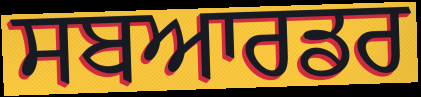
ਸਬਆਰਡਰ